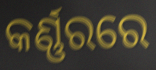
କର୍ଣ୍ଣରରେ